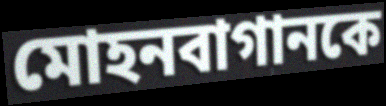
মোহনবাগানকে